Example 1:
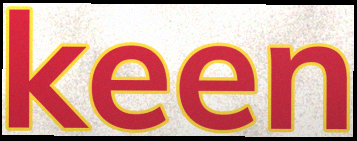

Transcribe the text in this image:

keen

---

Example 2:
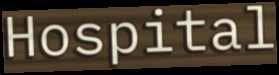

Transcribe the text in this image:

Hospital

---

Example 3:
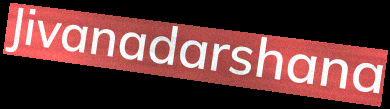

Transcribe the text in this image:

Jivanadarshana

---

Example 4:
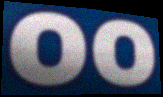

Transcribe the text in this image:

oo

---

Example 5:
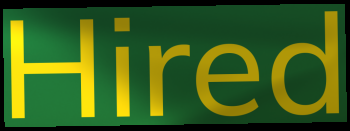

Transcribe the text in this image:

Hired